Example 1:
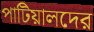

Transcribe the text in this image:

পাটিয়ালদের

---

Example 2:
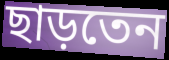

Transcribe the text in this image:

ছাড়তেন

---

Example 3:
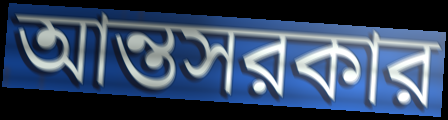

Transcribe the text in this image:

আন্তসরকার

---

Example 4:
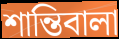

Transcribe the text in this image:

শান্তিবালা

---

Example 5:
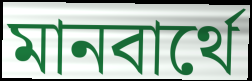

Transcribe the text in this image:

মানবার্থে